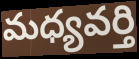
మధ్యవర్తి